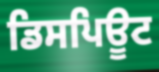
ਡਿਸਪਿਊਟ